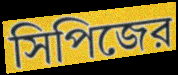
সিপিজের